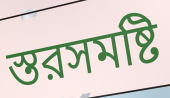
স্তরসমষ্টি